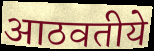
आठवतीये